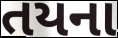
તયના